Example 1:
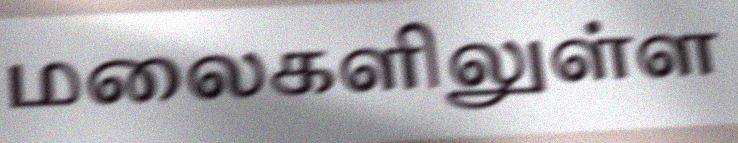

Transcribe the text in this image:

மலைகளிலுள்ள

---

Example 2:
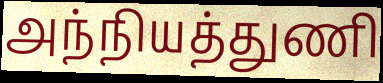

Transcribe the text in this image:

அந்நியத்துணி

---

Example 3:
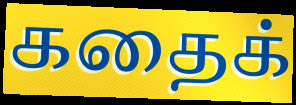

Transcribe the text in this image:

கதைக்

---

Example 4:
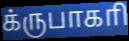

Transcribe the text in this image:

க்ருபாகரி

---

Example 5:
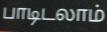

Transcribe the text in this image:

பாடிடலாம்